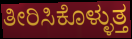
ತೀರಿಸಿಕೊಳ್ಳುತ್ತ